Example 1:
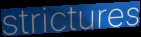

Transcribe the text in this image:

strictures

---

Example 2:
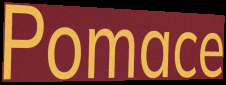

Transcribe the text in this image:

Pomace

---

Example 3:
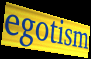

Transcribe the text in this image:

egotism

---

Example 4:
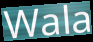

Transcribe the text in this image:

Wala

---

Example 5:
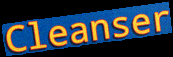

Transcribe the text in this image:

Cleanser